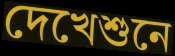
দেখেশুনে